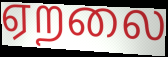
ஏறலை